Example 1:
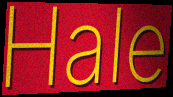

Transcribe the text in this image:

Hale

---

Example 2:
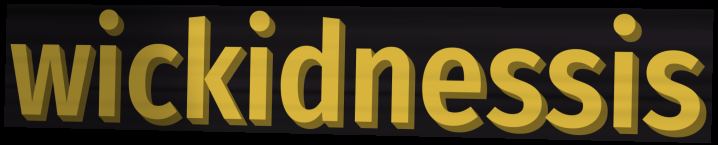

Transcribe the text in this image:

wickidnessis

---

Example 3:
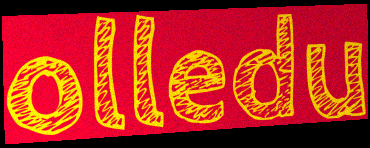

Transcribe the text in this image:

olledu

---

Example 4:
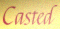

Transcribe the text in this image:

Casted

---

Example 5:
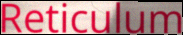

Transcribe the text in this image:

Reticulum